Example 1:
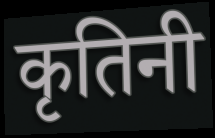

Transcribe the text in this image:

कृतिनी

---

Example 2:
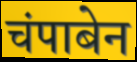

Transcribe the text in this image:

चंपाबेन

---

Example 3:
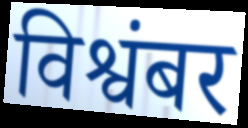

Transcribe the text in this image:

विश्वंबर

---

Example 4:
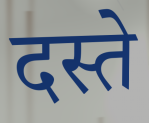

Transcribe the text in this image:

दस्ते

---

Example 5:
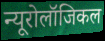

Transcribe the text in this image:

न्यूरोलॉजिकल